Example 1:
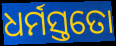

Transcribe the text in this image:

ଧର୍ମସ୍ତତୋ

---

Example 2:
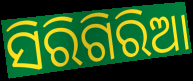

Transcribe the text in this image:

ସିରିଗିରିଆ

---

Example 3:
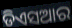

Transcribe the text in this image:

ଡିଏସଆର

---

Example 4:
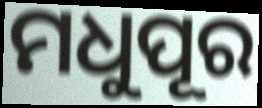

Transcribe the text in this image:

ମଧୁପୂର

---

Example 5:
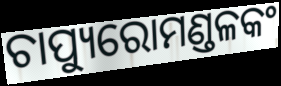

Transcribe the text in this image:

ଚାପ୍ୟୁରୋମଣ୍ଡଳକଂ